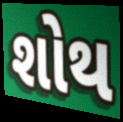
શોથ